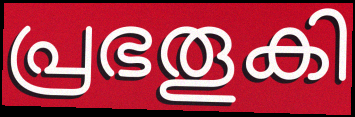
പ്രഭതൂകി